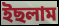
ইছলাম